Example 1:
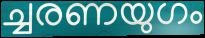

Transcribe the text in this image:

ച്ചരണയുഗം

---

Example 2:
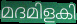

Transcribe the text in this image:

മദമിളകി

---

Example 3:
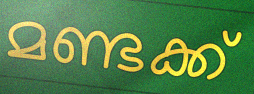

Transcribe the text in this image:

മണ്ടക്ക്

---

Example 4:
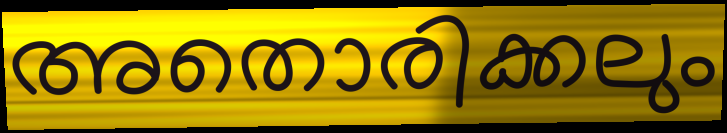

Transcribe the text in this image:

അതൊരിക്കലും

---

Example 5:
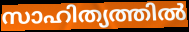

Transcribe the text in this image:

സാഹിത്യത്തിൽ